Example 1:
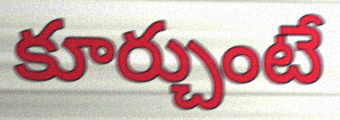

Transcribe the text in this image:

కూర్చుంటే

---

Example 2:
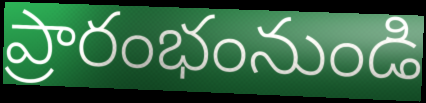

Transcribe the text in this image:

ప్రారంభంనుండి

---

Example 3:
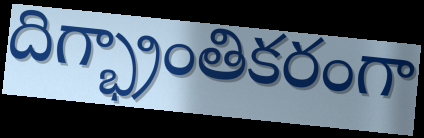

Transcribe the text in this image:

దిగ్భ్రాంతికరంగా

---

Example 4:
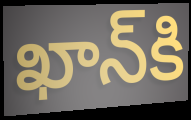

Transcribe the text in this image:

ఖాన్‌కి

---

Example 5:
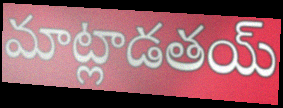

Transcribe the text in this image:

మాట్లాడతయ్